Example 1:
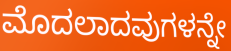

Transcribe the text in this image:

ಮೊದಲಾದವುಗಳನ್ನೇ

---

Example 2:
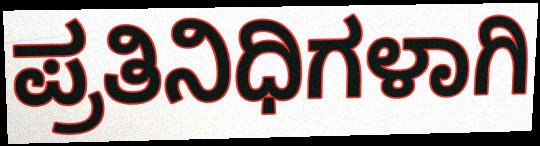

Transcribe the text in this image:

ಪ್ರತಿನಿಧಿಗಳಾಗಿ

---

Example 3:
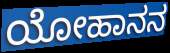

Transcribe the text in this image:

ಯೋಹಾನನ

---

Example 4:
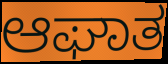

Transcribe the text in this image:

ಆಘಾತ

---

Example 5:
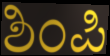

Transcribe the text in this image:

ಶಿಂಪಿ